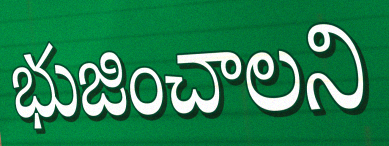
భుజించాలని